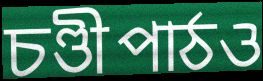
চণ্ডীপাঠও